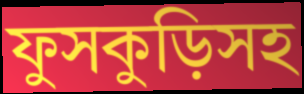
ফুসকুড়িসহ